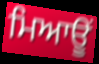
ਮਿਆਊਂ